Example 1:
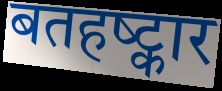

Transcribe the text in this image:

बतहष्ट्कार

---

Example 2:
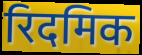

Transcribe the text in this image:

रिदमिक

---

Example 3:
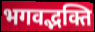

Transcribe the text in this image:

भगवद्भक्ति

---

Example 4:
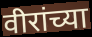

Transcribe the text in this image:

वीरांच्या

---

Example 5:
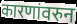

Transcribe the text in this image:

कारणांवरुन